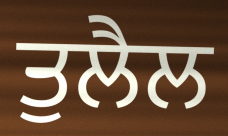
ਤੁਲੈਲ